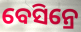
ବେସିନ୍ରେ